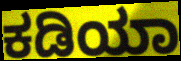
ಕಡಿಯಾ